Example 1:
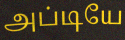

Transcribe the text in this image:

அப்டியே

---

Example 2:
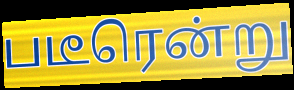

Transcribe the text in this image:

படீரென்று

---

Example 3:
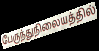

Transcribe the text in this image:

பேருந்துநிலையத்தில்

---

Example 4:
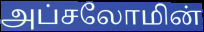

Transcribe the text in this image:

அப்சலோமின்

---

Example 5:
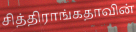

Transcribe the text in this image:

சித்திராங்கதாவின்